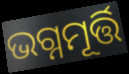
ଭଗ୍ନମୂର୍ତ୍ତି